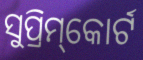
ସୁପ୍ରିମ୍‌କୋର୍ଟ